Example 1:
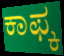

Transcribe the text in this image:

ಕಾಫ್ಕ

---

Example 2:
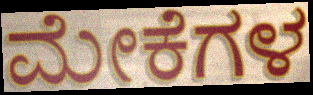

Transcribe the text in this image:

ಮೇಕೆಗಳ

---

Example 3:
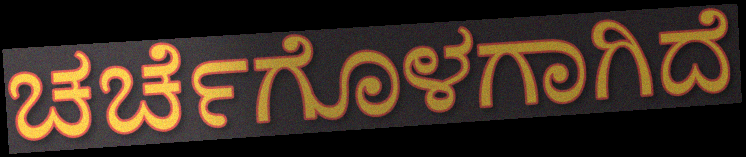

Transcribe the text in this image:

ಚರ್ಚೆಗೊಳಗಾಗಿದೆ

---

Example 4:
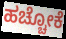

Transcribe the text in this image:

ಹಚ್ಚೋಕೆ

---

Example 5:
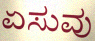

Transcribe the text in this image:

ಏಸುವು